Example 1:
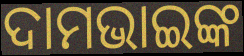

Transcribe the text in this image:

ଦାମଭାଇଙ୍କ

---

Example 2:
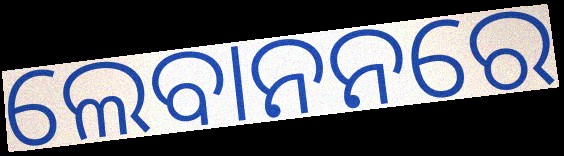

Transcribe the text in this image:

ଲେବାନନରେ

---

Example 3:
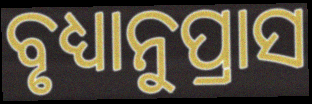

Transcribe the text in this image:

ବୃଧ୍ୟାନୁପ୍ରାସ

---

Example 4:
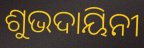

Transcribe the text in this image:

ଶୁଭଦାୟିନୀ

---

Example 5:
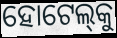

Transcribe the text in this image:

ହୋଟେଲ୍‌କୁ